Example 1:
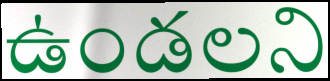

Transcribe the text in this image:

ఉండలని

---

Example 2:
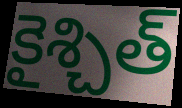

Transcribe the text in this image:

కైశ్చిత్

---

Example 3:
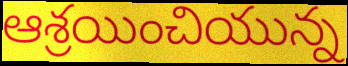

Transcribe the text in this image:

ఆశ్రయించియున్న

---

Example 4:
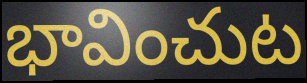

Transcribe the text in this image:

భావించుట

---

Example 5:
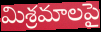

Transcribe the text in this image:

మిశ్రమాలపై